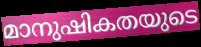
മാനുഷികതയുടെ